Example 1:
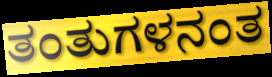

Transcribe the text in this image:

ತಂತುಗಳನಂತ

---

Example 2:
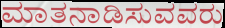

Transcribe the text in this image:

ಮಾತನಾಡಿಸುವವರು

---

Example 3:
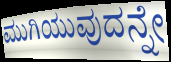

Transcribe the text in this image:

ಮುಗಿಯುವುದನ್ನೇ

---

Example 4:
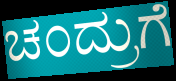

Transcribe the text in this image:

ಚಂದ್ರುಗೆ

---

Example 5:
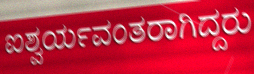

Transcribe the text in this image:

ಐಶ್ವರ್ಯವಂತರಾಗಿದ್ದರು